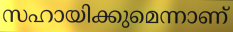
സഹായിക്കുമെന്നാണ്